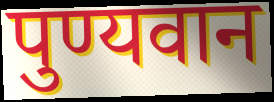
पुण्यवान